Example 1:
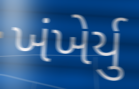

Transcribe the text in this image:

ખંખેર્યુ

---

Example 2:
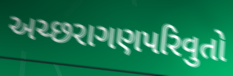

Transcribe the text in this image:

અચ્છરાગણપરિવુતો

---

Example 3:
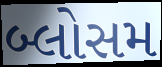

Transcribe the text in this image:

બ્લોસમ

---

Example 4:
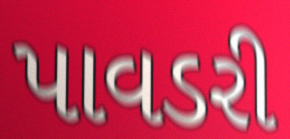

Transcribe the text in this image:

પાવડરી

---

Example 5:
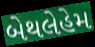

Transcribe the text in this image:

બેથલેહેમ